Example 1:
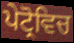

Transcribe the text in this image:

ਪੇਟ੍ਰੋਵਿਚ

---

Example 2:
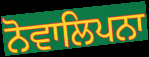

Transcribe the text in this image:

ਨੋਵਾਲਿਪਨਾ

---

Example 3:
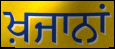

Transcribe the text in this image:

ਖ਼ਜਾਨਾਂ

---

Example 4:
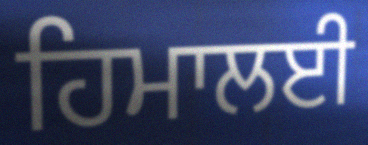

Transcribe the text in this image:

ਹਿਮਾਲਈ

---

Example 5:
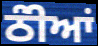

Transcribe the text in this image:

ਠੰੀਆਂ